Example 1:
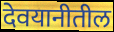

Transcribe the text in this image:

देवयानीतील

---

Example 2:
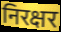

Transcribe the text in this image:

निरक्षर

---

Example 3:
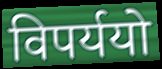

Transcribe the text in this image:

विपर्ययो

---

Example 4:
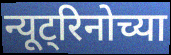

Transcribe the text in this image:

न्यूट्रिनोच्या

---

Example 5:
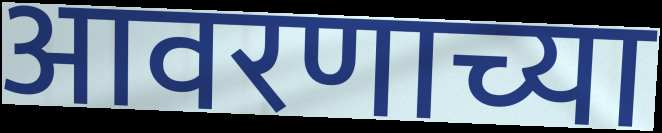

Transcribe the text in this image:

आवरणाच्या